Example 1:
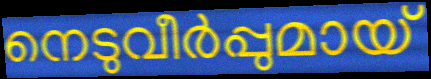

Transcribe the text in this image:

നെടുവീർപ്പുമായ്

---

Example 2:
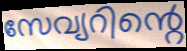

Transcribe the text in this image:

സേവ്യറിന്റെ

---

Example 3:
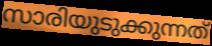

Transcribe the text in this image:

സാരിയുടുക്കുന്നത്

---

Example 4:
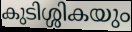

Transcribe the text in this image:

കുടിശ്ശികയും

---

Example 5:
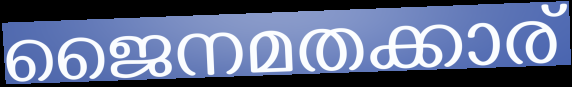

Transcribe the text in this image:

ജൈനമതക്കാര്